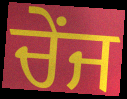
ਚੇਂਜ